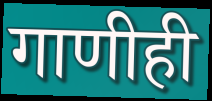
गाणीही